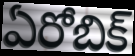
ఏరోబిక్